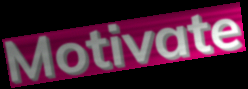
Motivate